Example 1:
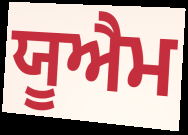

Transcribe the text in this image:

ਯੂਐਮ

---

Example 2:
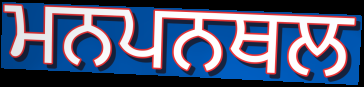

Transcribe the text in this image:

ਮਨਪਨਥਲ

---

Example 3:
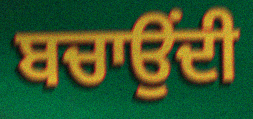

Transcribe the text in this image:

ਬਚਾਉਂਦੀ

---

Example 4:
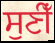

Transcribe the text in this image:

ਸੁਣੀਁ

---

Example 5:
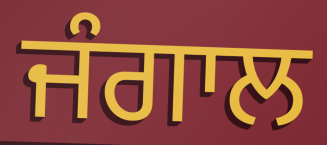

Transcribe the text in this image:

ਜੰਗਾਲ